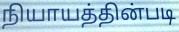
நியாயத்தின்படி